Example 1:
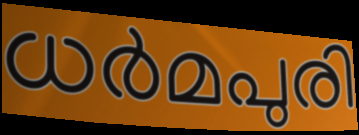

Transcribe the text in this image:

ധർമപുരി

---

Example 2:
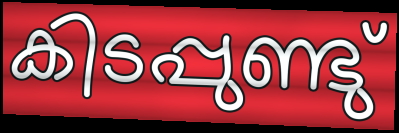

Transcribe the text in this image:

കിടപ്പുണ്ടു്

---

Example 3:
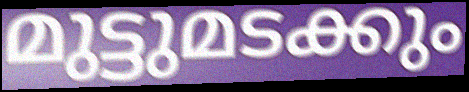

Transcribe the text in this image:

മുട്ടുമടക്കും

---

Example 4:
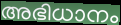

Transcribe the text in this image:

അഭിധാനം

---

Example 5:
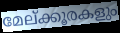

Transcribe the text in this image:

മേല്ക്കൂരകളും